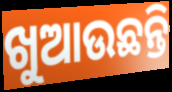
ଖୁଆଉଛନ୍ତି